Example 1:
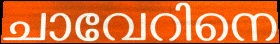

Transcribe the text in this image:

ചാവേറിനെ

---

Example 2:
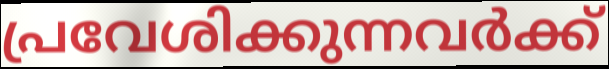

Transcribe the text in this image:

പ്രവേശിക്കുന്നവർക്ക്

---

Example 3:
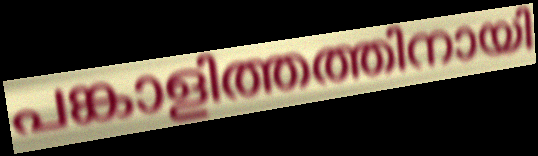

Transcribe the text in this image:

പങ്കാളിത്തത്തിനായി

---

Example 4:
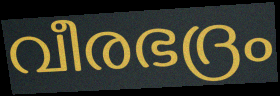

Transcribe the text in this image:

വീരഭദ്രം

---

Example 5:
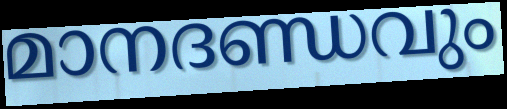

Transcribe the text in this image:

മാനദണ്ഡവും